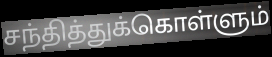
சந்தித்துக்கொள்ளும்